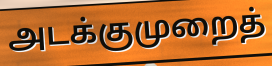
அடக்குமுறைத்